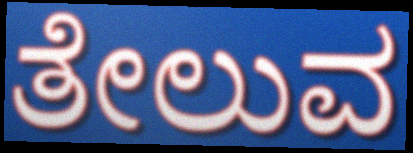
ತೇಲುವ